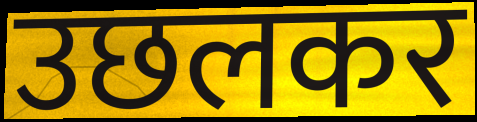
उछलकर